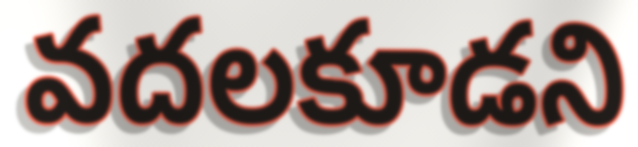
వదలకూడని